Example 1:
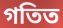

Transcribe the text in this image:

গতিত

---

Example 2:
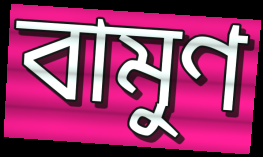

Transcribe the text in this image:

বামুণ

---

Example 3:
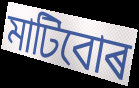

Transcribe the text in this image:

মাটিবোৰ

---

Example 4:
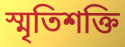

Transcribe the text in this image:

স্মৃতিশক্তি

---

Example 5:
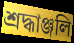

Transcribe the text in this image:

শ্ৰদ্ধাঞ্জলি